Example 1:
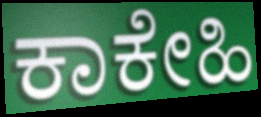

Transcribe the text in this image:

ಕಾಕೇಹಿ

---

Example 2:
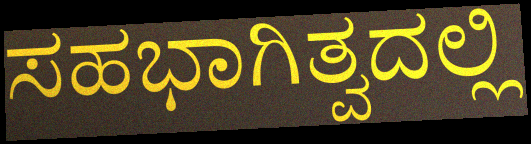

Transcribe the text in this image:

ಸಹಭಾಗಿತ್ವದಲ್ಲಿ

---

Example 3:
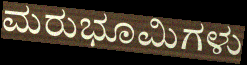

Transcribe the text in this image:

ಮರುಭೂಮಿಗಳು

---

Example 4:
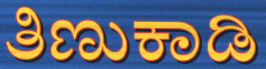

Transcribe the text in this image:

ತಿಣುಕಾಡಿ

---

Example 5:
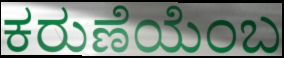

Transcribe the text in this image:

ಕರುಣೆಯೆಂಬ